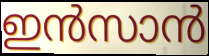
ഇൻസാൻ